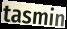
tasmin